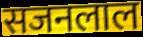
सजनलाल